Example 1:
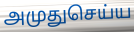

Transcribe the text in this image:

அமுதுசெய்ய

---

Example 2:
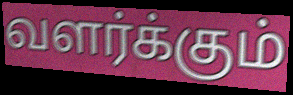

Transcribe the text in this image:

வளர்க்கும்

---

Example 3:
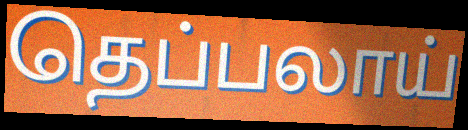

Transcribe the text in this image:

தெப்பலாய்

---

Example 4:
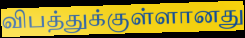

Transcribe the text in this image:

விபத்துக்குள்ளானது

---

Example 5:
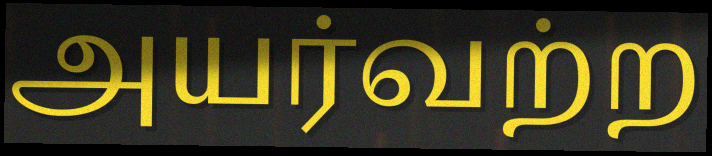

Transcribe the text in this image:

அயர்வற்ற